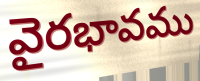
వైరభావము